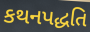
કથનપદ્ધતિ